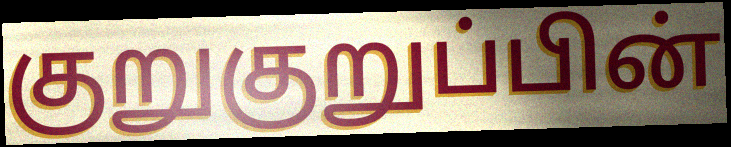
குறுகுறுப்பின்